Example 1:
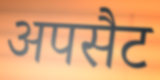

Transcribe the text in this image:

अपसैट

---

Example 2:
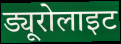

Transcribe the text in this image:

ड्यूरोलाइट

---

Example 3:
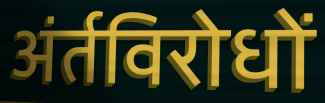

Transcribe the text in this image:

अंर्तविरोधों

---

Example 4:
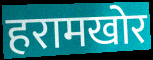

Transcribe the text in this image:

हरामखोर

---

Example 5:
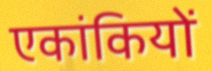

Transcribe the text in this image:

एकांकियों